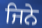
ਜਿਨੇ